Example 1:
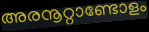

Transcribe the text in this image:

അരനൂറ്റാണ്ടോളം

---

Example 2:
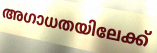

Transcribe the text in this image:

അഗാധതയിലേക്ക്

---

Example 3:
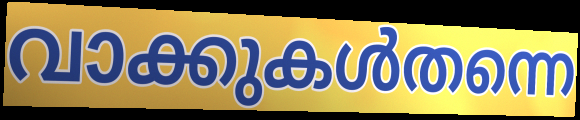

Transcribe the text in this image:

വാക്കുകൾതന്നെ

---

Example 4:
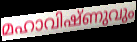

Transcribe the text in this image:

മഹാവിഷ്ണുവും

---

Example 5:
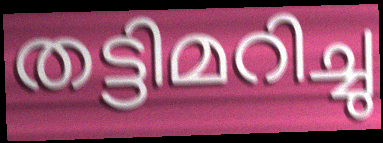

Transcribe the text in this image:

തട്ടിമറിച്ചു